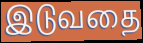
இடுவதை